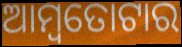
ଆମ୍ବତୋଟାର